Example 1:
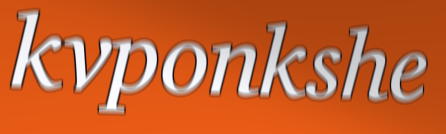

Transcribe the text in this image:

kvponkshe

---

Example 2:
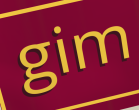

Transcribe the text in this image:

gim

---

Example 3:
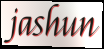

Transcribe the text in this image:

jashun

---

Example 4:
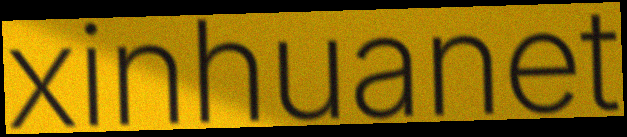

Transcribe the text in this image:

xinhuanet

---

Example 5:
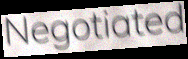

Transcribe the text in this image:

Negotiated